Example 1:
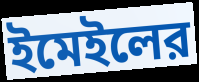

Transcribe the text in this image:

ইমেইলের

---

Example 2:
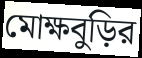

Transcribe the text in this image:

মোক্ষবুড়ির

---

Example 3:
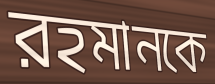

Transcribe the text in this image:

রহমানকে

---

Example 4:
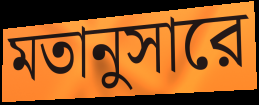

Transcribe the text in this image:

মতানুসারে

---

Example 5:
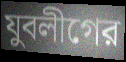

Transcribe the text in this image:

যুবলীগের